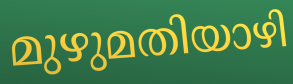
മുഴുമതിയാഴി